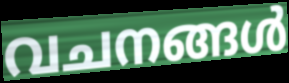
വചനങ്ങൾ